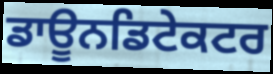
ਡਾਊਨਡਿਟੇਕਟਰ